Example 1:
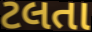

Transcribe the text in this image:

ટલતા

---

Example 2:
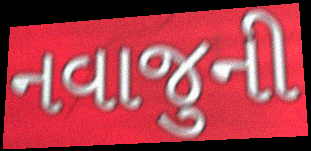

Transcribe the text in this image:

નવાજુની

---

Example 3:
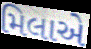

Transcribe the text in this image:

મિલાએ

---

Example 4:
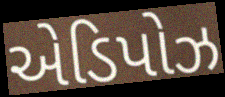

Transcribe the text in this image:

એડિપોઝ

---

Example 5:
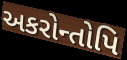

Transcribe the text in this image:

અકરોન્તોપિ